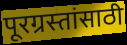
पूरग्रस्तांसाठी